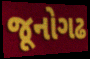
જૂનોગઢ